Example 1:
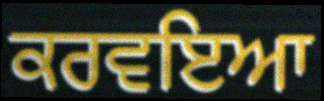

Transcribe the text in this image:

ਕਰਵਇਆ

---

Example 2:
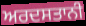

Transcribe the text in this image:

ਅਰਦਸਤਾਨੀ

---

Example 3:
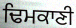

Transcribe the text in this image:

ਢਿਮਕਾਣੀ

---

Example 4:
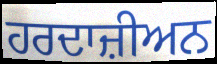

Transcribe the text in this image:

ਹਰਦਾਜ਼ੀਅਨ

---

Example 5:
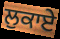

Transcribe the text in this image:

ਲੁਕਾਏ